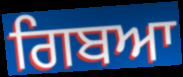
ਗਿਬਆ